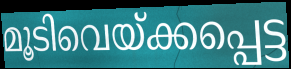
മൂടിവെയ്ക്കപ്പെട്ട